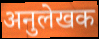
अनुलेखक